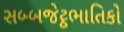
સબ્બજેટ્ઠભાતિકો